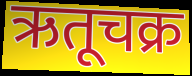
ऋतूचक्र